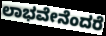
ಲಾಭವೇನೆಂದರೆ